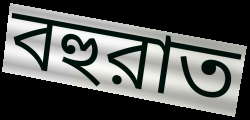
বহুরাত